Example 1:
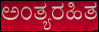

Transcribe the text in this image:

ಅಂತ್ಯರಹಿತ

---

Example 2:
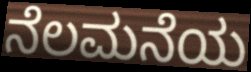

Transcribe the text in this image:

ನೆಲಮನೆಯ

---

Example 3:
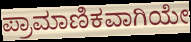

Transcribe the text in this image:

ಪ್ರಾಮಾಣಿಕವಾಗಿಯೇ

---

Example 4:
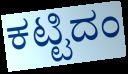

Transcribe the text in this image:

ಕಟ್ಟಿದಂ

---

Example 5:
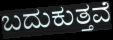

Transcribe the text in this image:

ಬದುಕುತ್ತವೆ